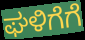
ಘಳಿಗೆಗೆ